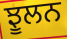
ਝੂਲਨ